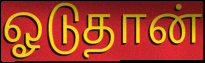
ஓடுதான்